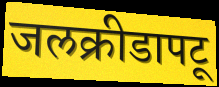
जलक्रीडापटू